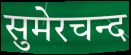
सुमेरचन्द